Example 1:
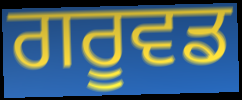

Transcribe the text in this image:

ਗਰੂਵਡ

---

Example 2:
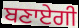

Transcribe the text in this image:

ਬਣਾਏਗੀ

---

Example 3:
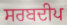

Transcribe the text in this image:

ਸਰਬਦੀਪ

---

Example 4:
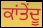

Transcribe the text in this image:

ਕਾਂਤੇਂਦੂ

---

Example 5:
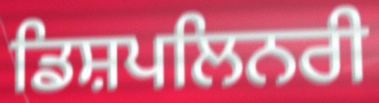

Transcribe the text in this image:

ਡਿਸ਼ਪਲਿਨਰੀ